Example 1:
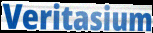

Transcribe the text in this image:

Veritasium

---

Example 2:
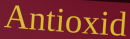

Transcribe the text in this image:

Antioxid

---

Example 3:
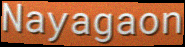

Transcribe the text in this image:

Nayagaon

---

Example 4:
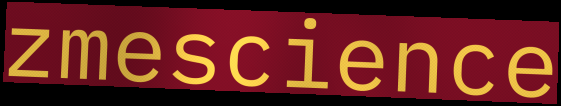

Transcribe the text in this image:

zmescience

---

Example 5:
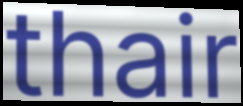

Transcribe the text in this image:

thair